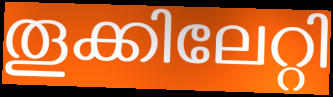
തൂക്കിലേറ്റി